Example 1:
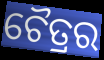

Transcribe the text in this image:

ଚୈତ୍ରର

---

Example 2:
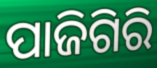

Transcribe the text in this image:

ପାଜିଗିରି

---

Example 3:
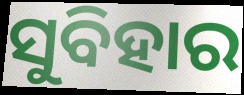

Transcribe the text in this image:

ସୁବିହାର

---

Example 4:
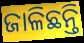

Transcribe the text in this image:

ଜାଳିଛନ୍ତି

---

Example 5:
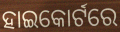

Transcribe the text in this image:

ହାଇକୋର୍ଟରେ